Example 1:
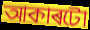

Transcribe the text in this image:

আকাৰটো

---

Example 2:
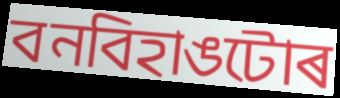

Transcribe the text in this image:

বনবিহাঙটোৰ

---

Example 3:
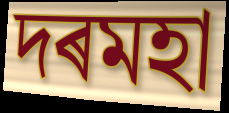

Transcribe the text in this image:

দৰমহা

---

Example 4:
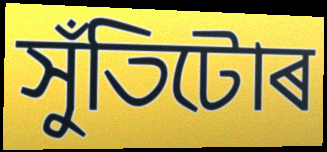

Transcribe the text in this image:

সুঁতিটোৰ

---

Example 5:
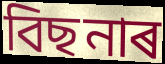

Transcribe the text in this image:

বিছনাৰ